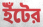
ইঁটের